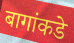
बागांकडे